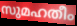
സുമഹതീം